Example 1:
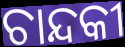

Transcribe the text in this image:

ଚାନ୍ଦକୀ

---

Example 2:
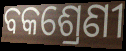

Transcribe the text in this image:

ବକଶ୍ରେଣୀ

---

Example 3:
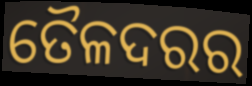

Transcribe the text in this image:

ତୈଳଦରର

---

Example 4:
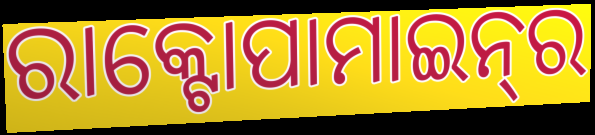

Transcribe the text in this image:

ରାକ୍ଟୋପାମାଇନ୍‌ର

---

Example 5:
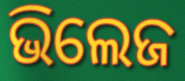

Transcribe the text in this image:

ଭିଲେଜ